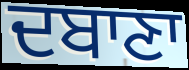
ਦਬਾਣਾ